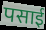
पसाई